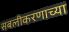
सबलीकरणाच्या